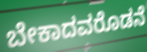
ಬೇಕಾದವರೊಡನೆ